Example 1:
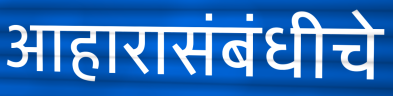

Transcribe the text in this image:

आहारासंबंधीचे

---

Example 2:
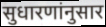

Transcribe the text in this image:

सुधारणांनुसार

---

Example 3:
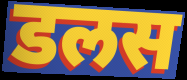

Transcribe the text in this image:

डलस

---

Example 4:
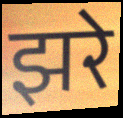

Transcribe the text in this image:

झरे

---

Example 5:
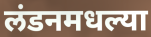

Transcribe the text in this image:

लंडनमधल्या